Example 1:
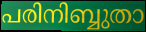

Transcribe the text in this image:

പരിനിബ്ബുതാ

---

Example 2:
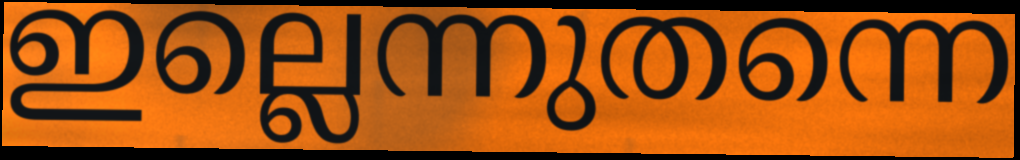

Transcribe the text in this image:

ഇല്ലെന്നുതന്നെ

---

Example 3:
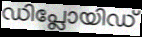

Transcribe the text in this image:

ഡിപ്ലോയിഡ്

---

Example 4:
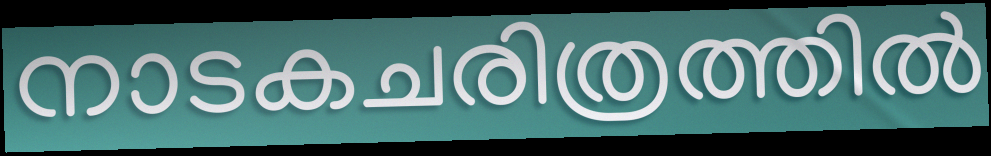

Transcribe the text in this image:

നാടകചരിത്രത്തിൽ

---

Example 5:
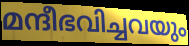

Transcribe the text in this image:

മന്ദീഭവിച്ചവയും